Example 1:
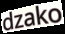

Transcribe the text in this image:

dzako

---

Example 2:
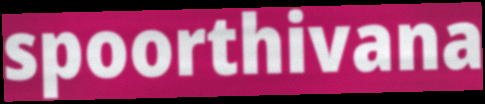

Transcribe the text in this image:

spoorthivana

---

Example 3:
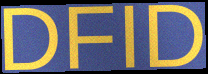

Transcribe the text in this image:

DFID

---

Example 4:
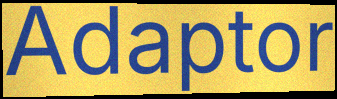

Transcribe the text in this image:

Adaptor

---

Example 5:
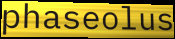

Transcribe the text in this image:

phaseolus